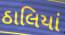
ઠાલિયાં